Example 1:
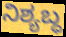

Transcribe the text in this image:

ನಿಶ್ಯಬ್ಧ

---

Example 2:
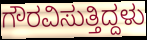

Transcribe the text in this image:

ಗೌರವಿಸುತ್ತಿದ್ದಳು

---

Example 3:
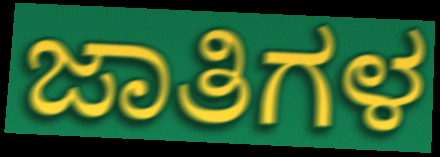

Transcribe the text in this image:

ಜಾತಿಗಳ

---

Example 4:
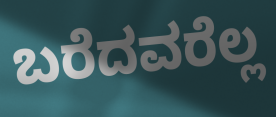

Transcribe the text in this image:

ಬರೆದವರೆಲ್ಲ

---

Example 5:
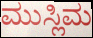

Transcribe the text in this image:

ಮುಸ್ಲಿಮ